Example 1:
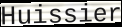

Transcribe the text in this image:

Huissier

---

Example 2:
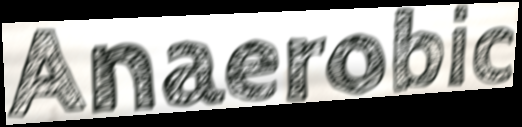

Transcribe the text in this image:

Anaerobic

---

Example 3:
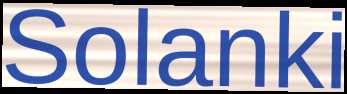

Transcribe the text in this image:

Solanki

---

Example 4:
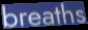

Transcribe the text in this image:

breaths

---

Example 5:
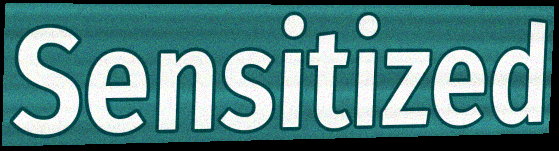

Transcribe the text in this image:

Sensitized